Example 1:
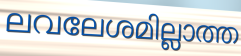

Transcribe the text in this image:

ലവലേശമില്ലാത്ത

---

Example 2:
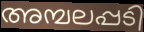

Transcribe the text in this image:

അമ്പലപ്പടി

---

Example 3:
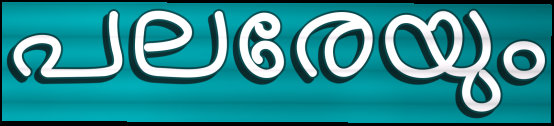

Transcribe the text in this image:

പലരേയും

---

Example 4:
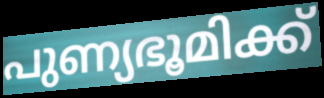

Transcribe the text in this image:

പുണ്യഭൂമിക്ക്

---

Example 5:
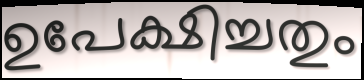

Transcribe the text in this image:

ഉപേക്ഷിച്ചതും